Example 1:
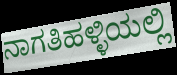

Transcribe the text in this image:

ನಾಗತಿಹಳ್ಳಿಯಲ್ಲಿ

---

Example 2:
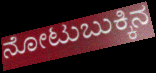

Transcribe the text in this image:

ನೋಟುಬುಕ್ಕಿನ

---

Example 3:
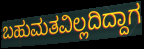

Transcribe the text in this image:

ಬಹುಮತವಿಲ್ಲದಿದ್ದಾಗ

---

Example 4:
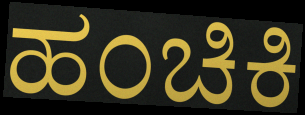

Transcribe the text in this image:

ಹಂಚಿಕಿ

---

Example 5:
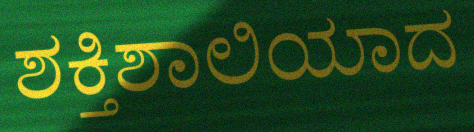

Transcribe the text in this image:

ಶಕ್ತಿಶಾಲಿಯಾದ